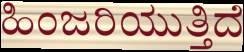
ಹಿಂಜರಿಯುತ್ತಿದೆ